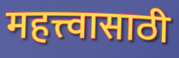
महत्त्वासाठी